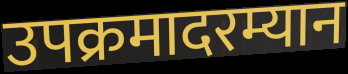
उपक्रमादरम्यान